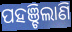
ପହଞ୍ଚିଲାଣି